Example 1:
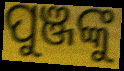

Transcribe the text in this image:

ପୁଞ୍ଜଙ୍କୁ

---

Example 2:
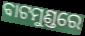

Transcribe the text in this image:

ବାଟମୁଣ୍ଡରେ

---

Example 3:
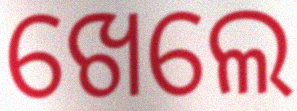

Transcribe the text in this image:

ଖେଲେ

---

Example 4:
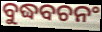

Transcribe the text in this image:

ବୁଦ୍ଧବଚନଂ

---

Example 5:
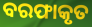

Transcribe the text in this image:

ବରଫାକୃତ